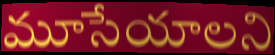
మూసేయాలని